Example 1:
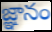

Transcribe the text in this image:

జ్ఞానం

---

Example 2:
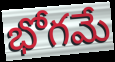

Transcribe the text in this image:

భోగమే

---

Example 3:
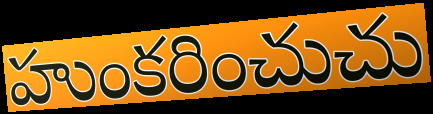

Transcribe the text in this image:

హుంకరించుచు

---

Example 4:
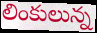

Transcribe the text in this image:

లింకులున్న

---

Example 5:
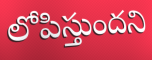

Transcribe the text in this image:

లోపిస్తుందని